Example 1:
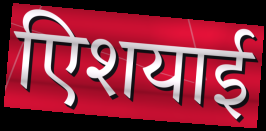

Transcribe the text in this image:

एिशयाई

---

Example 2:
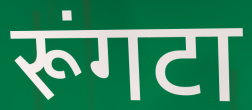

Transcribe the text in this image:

रूंगटा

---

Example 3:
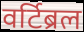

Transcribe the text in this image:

वर्टिब्रल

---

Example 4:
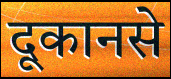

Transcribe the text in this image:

दूकानसे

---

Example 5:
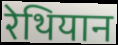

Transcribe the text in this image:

रेथियान